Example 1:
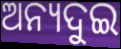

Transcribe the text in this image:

ଅନ୍ୟଦୁଇ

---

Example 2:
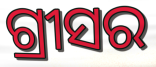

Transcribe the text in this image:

ଗ୍ରୀସର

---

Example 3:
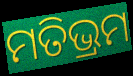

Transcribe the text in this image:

ମତିଭ୍ରମ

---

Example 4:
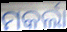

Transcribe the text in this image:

ମକର୍ଲା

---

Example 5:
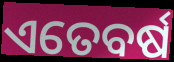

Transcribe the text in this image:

ଏତେବର୍ଷ